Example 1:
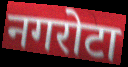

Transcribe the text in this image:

नगरोटा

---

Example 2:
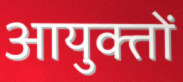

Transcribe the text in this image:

आयुक्तों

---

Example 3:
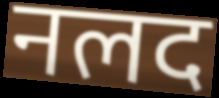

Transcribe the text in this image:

नलद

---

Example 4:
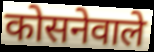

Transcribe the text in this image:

कोसनेवाले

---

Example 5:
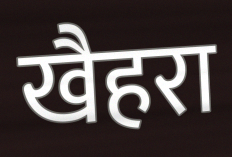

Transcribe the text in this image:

खैहरा